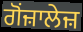
ਗੋਂਜ਼ਾਲੇਜ਼